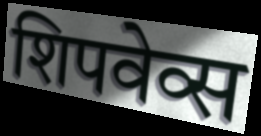
शिपवेव्स